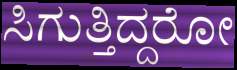
ಸಿಗುತ್ತಿದ್ದರೋ